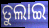
ତୁଲାଇ